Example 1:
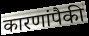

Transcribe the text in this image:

कारणांपैकी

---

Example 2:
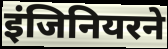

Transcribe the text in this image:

इंजिनियरने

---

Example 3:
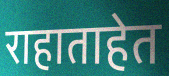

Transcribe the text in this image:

राहाताहेत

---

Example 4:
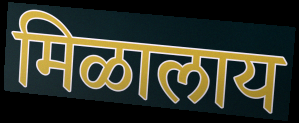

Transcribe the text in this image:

मिळालाय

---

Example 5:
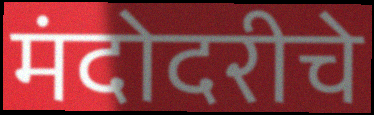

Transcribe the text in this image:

मंदोदरीचे